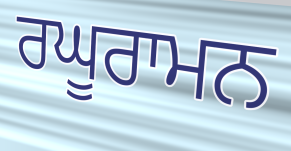
ਰਘੂਰਾਮਨ